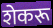
शेकरू